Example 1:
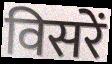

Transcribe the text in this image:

विसरें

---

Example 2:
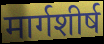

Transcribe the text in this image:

मार्गशीर्ष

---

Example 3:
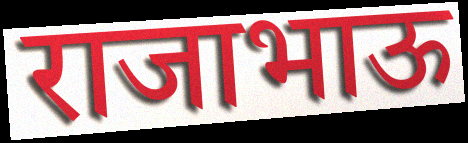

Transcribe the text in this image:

राजाभाऊ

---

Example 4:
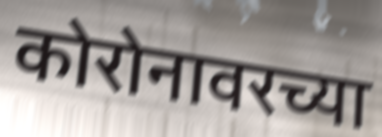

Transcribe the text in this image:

कोरोनावरच्या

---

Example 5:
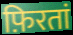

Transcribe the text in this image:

फ़िरतां